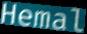
Hemal